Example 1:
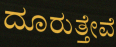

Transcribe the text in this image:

ದೂರುತ್ತೇವೆ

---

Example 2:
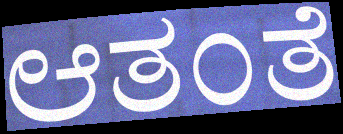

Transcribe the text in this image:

ಆತಂತೆ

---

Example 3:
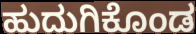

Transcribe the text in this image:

ಹುದುಗಿಕೊಂಡ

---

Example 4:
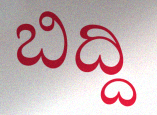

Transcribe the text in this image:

ಬಿದ್ದಿ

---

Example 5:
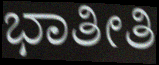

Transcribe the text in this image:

ಭಾತೀತಿ